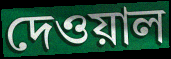
দেওয়াল